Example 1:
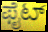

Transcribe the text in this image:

ಫೈಟ್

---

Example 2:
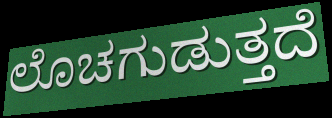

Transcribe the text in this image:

ಲೊಚಗುಡುತ್ತದೆ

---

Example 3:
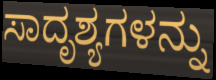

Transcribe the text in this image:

ಸಾದೃಶ್ಯಗಳನ್ನು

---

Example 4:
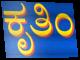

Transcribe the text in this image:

ಕೃತಿಂ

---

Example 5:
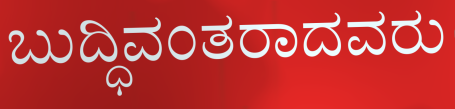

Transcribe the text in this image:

ಬುದ್ಧಿವಂತರಾದವರು